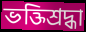
ভক্তিশ্রদ্ধা